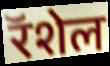
रॅशेल